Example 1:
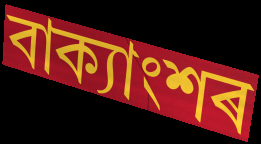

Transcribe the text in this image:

বাক্যাংশৰ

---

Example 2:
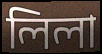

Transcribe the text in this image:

লিলা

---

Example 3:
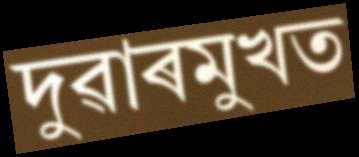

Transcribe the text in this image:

দুৱাৰমুখত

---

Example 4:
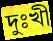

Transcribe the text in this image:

দুঃখী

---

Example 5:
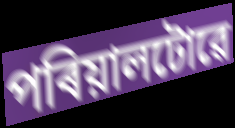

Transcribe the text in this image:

পৰিয়ালটোৱে